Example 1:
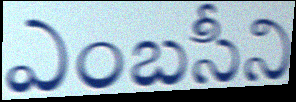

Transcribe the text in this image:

ఎంబసీని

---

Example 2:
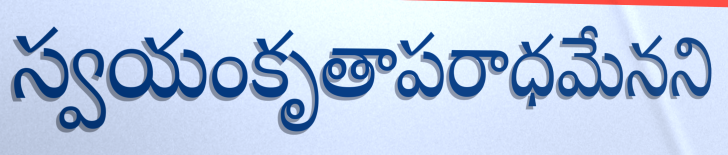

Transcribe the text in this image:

స్వయంకృతాపరాధమేనని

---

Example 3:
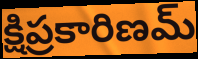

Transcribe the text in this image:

క్షిప్రకారిణమ్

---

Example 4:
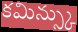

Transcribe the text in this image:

కమిన్స్కు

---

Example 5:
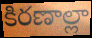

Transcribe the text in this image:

కిరణాల్లా